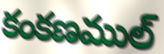
కంకణముల్